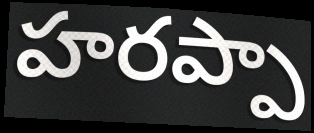
హరప్పా